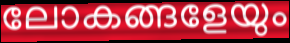
ലോകങ്ങളേയും